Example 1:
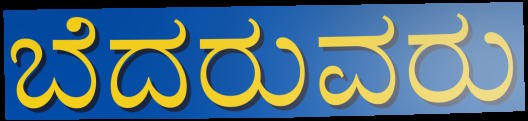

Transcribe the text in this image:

ಬೆದರುವರು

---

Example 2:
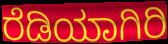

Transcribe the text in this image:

ರೆಡಿಯಾಗಿರಿ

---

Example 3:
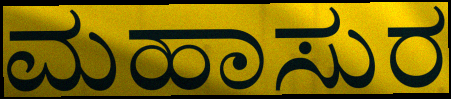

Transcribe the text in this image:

ಮಹಾಸುರ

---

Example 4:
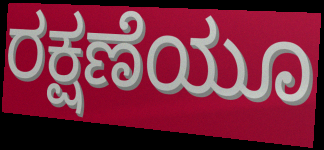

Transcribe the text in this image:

ರಕ್ಷಣೆಯೂ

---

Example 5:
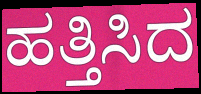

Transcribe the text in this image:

ಹತ್ತಿಸಿದ